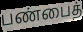
பண்பைத்